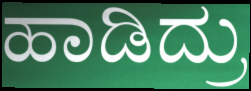
ಹಾಡಿದ್ರು